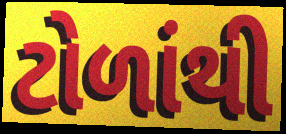
ટોળાંથી